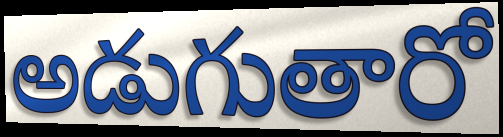
అడుగుతారో